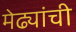
मेढ्यांची